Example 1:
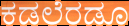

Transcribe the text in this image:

ಕಡಲೆರಡೂ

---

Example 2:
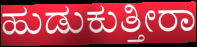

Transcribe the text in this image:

ಹುಡುಕುತ್ತೀರಾ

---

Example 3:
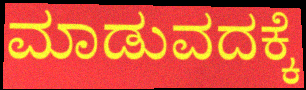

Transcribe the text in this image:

ಮಾಡುವದಕ್ಕೆ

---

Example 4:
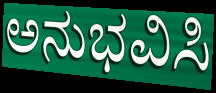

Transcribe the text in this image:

ಅನುಭವಿಸಿ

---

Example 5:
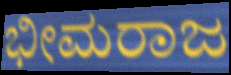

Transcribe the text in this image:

ಭೀಮರಾಜ